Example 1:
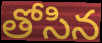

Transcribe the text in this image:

తోసిన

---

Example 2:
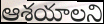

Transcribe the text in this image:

ఆశయాలని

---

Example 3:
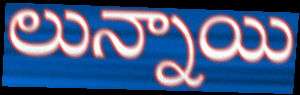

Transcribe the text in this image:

లున్నాయి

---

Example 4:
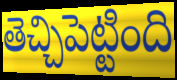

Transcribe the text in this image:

తెచ్చిపెట్టింది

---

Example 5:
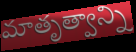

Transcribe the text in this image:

మాతృత్వాన్ని